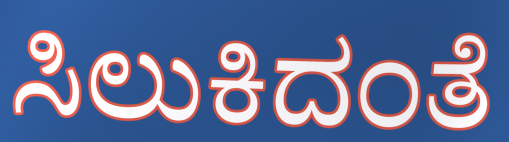
ಸಿಲುಕಿದಂತೆ